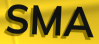
SMA